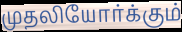
முதலியோர்க்கும்